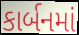
કાર્બનમાં